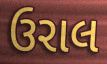
ઉરાલ